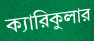
ক্যারিকুলার